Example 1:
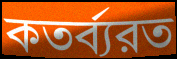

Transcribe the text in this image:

কতর্ব্যরত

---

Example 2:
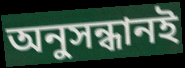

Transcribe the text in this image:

অনুসন্ধানই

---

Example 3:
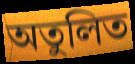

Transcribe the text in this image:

অতুলিত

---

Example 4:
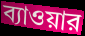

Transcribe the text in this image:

ব্যাওয়ার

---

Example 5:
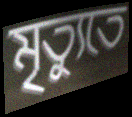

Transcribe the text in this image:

মৃত্যুতে